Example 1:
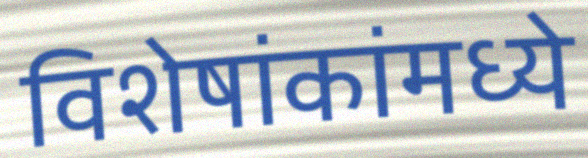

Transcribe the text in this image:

विशेषांकांमध्ये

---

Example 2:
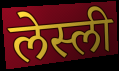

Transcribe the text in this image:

लेस्ली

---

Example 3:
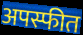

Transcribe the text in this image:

अपस्फीत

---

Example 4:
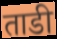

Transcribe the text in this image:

ताडी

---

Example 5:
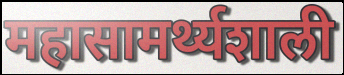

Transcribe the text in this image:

महासामर्थ्यशाली